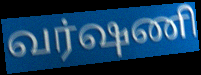
வர்ஷணி